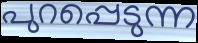
പുറപ്പെടുന്ന